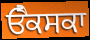
ਓੈਕਸਕਾ